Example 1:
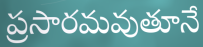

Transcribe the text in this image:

ప్రసారమవుతూనే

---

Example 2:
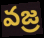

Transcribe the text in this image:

వజ్ర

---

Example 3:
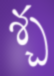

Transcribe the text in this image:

శ్చ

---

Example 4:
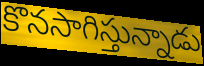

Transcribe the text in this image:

కొనసాగిస్తున్నాడు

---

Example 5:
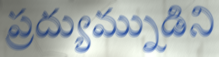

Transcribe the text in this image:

ప్రద్యుమ్నుడిని